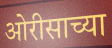
ओरीसाच्या